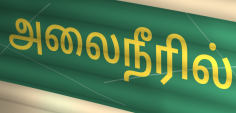
அலைநீரில்